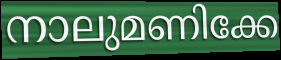
നാലുമണിക്കേ